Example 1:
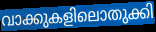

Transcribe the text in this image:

വാക്കുകളിലൊതുക്കി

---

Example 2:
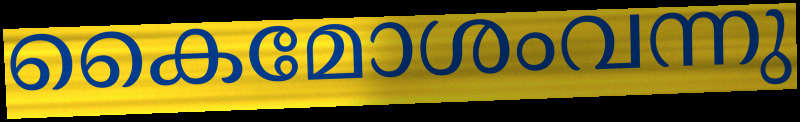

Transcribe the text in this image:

കൈമോശംവന്നു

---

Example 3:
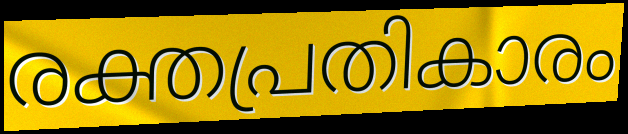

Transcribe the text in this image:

രക്തപ്രതികാരം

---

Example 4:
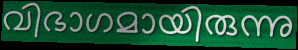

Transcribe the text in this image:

വിഭാഗമായിരുന്നു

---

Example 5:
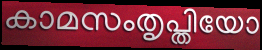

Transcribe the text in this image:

കാമസംതൃപ്തിയോ